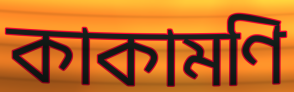
কাকামণি